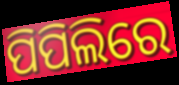
ପିପିଲିରେ